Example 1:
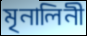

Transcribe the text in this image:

মৃনালিনী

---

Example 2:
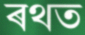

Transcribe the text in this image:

ৰথত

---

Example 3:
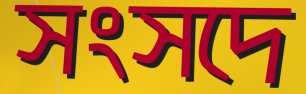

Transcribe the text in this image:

সংসদে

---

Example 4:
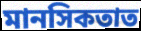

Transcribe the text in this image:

মানসিকতাত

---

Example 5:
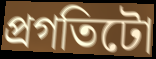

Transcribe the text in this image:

প্ৰগতিটো